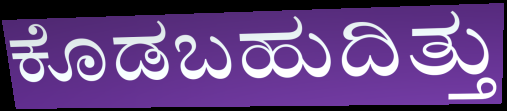
ಕೊಡಬಹುದಿತ್ತು